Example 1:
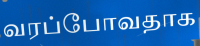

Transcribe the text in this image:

வரப்போவதாக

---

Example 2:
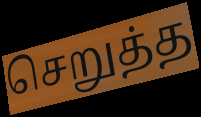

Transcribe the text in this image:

செறுத்த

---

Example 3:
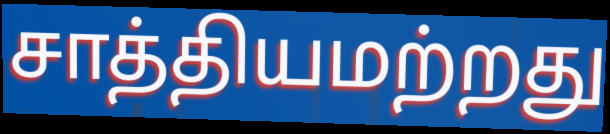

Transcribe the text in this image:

சாத்தியமற்றது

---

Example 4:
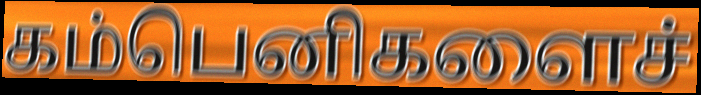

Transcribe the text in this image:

கம்பெனிகளைச்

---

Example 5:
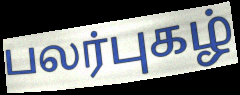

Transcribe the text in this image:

பலர்புகழ்